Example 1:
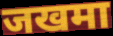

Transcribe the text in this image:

जखमा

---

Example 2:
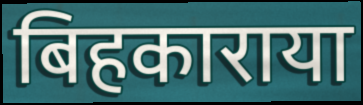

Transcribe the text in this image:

बिहकाराया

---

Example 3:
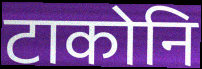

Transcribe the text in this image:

टाकोनि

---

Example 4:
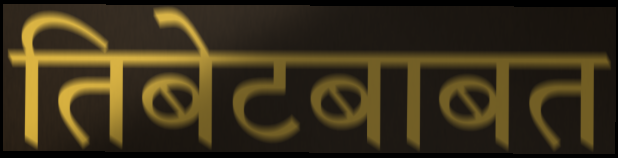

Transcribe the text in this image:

तिबेटबाबत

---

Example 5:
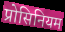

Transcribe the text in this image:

प्रोसिनियम